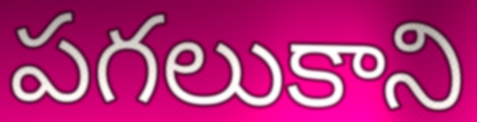
పగలుకాని